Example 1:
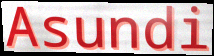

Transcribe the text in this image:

Asundi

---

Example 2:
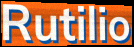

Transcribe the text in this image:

Rutilio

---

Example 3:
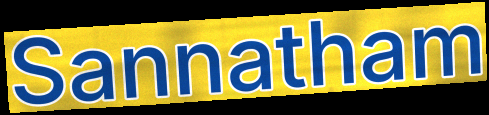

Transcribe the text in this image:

Sannatham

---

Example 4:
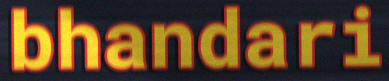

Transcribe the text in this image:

bhandari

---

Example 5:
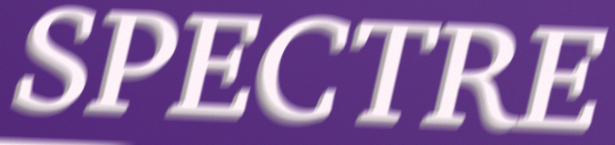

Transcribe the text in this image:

SPECTRE